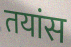
तयांस